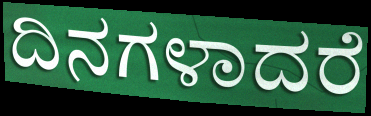
ದಿನಗಳಾದರೆ